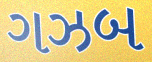
ગઝબ